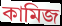
কামিজ